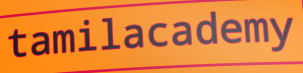
tamilacademy